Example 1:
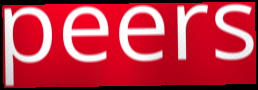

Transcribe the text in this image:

peers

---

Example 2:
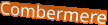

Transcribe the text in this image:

Combermere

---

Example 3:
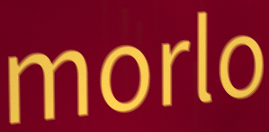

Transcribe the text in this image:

morlo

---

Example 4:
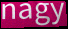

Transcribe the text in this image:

nagy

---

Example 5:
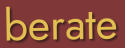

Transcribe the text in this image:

berate